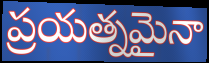
ప్రయత్నమైనా